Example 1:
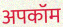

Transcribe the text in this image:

अपकॉम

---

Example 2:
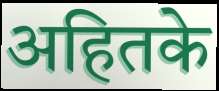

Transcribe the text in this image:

अहितके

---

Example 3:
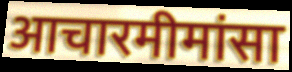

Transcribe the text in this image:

आचारमीमांसा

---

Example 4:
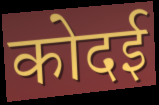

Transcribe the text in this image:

कोदई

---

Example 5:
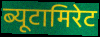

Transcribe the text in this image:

ब्यूटामिरेट